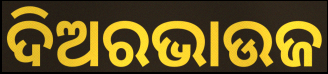
ଦିଅରଭାଉଜ